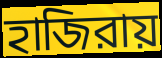
হাজিরায়